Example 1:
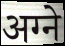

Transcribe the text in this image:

अग्ने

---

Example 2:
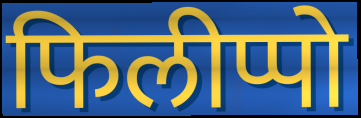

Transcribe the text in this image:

फिलीप्पो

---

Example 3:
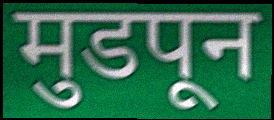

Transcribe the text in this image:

मुडपून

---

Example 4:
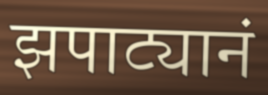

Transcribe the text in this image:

झपाट्यानं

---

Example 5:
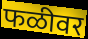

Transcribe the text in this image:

फळीवर